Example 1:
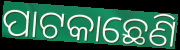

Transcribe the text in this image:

ପାଟକାଛେଣି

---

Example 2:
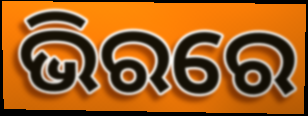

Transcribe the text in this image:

ଭିରରେ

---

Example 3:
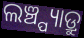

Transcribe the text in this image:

ଲଞ୍ଚ୍ପ୍ୟାଡ୍ରୁ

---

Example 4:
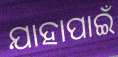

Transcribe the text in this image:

ଯାହାପାଇଁ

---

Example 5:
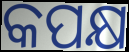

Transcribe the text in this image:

କପକ୍ଷ